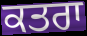
ਕਤਰਾ